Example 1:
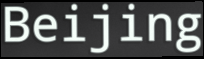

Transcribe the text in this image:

Beijing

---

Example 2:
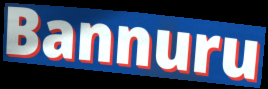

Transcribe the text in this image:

Bannuru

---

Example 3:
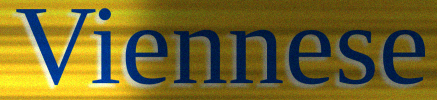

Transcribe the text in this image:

Viennese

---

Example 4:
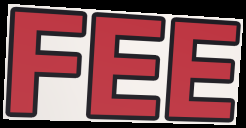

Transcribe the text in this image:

FEE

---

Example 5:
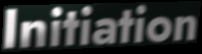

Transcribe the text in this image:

Initiation